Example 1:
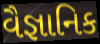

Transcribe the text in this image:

વૈજ્ઞાનિક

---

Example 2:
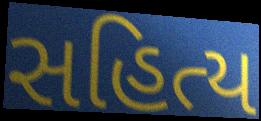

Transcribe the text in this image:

સહિત્ય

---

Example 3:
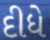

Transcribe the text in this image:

દીધે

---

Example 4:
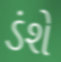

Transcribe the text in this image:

ડંશે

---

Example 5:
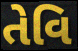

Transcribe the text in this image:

તેવિ